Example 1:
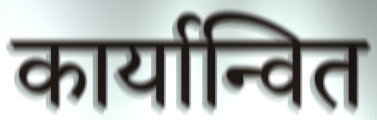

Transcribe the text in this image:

कार्यान्वित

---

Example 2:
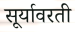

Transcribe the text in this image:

सूर्यावरती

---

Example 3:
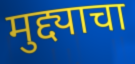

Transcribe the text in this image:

मुद्द्याचा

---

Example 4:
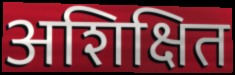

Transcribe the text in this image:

अशिक्षित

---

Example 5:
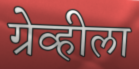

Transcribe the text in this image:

ग्रेव्हीला